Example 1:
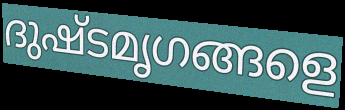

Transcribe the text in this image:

ദുഷ്ടമൃഗങ്ങളെ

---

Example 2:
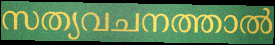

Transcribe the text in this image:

സത്യവചനത്താൽ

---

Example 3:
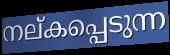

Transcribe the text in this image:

നല്കപ്പെടുന്ന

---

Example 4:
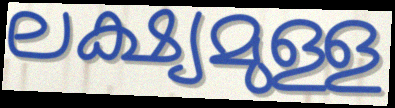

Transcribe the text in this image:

ലക്ഷ്യമുള്ള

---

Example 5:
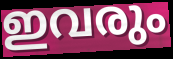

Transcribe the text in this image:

ഇവരും